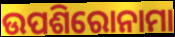
ଉପଶିରୋନାମା